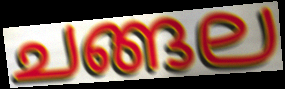
ചങ്ങല